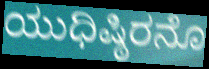
ಯುಧಿಷ್ಠಿರನೊ